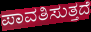
ಪಾವತಿಸುತ್ತದೆ